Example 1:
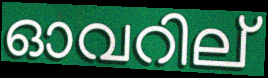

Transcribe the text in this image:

ഓവറില്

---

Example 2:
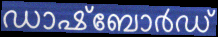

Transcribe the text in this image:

ഡാഷ്ബോർഡ്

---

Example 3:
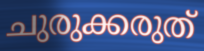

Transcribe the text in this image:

ചുരുക്കരുത്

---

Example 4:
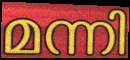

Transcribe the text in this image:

മന്നി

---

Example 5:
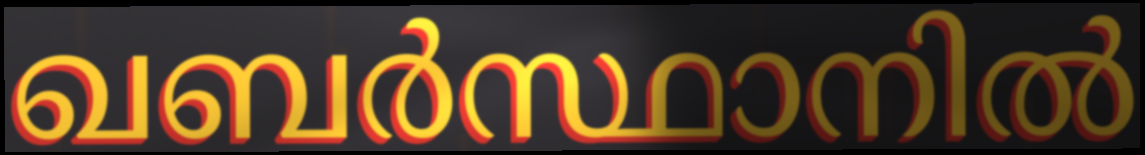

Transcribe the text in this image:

ഖബർസ്ഥാനിൽ